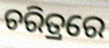
ଚରିତ୍ରରେ